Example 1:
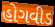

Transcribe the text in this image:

હોગવીડ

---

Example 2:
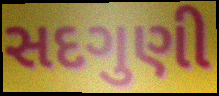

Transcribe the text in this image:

સદગુણી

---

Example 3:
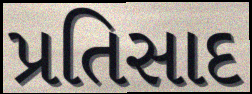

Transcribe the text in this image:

પ્રતિસાદ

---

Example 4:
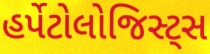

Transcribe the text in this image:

હર્પેટોલોજિસ્ટ્સ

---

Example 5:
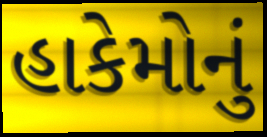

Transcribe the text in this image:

હાકેમોનું